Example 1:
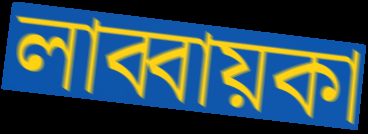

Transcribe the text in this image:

লাব্বায়কা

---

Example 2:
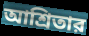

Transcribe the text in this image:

আশ্রিতার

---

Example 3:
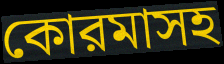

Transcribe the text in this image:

কোরমাসহ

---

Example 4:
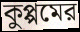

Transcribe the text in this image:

কুপ্পমের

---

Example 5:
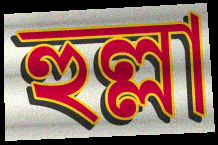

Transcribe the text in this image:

হুল্লা